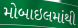
મોબાઇલમાંથી